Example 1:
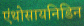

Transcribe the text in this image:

एंथोसायनिडिन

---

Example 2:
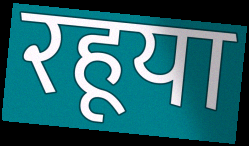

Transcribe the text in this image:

रहूया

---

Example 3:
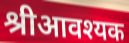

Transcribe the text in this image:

श्रीआवश्यक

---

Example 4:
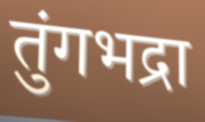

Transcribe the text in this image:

तुंगभद्रा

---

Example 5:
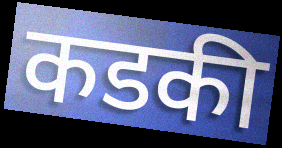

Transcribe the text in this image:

कडकी